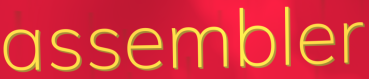
assembler